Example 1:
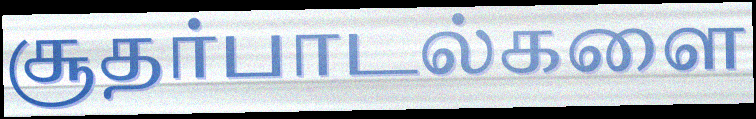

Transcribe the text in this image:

சூதர்பாடல்களை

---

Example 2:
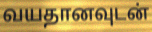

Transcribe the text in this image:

வயதானவுடன்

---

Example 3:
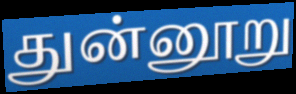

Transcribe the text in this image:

துன்னூறு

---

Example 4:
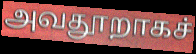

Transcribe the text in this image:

அவதூறாகச்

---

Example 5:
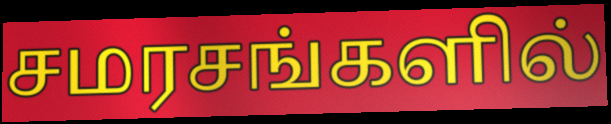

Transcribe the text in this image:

சமரசங்களில்